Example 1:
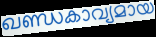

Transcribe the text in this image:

ഖണ്ഡകാവ്യമായ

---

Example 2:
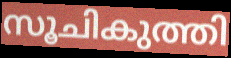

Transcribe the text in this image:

സൂചികുത്തി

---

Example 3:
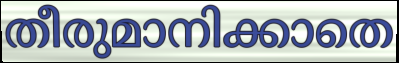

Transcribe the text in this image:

തീരുമാനിക്കാതെ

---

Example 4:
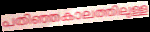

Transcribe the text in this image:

പതിഞ്ഞകാലത്തിലുള്ള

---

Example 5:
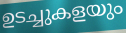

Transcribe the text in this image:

ഉടച്ചുകളയും